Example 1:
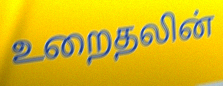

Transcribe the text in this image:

உறைதலின்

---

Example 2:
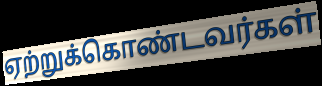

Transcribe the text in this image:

ஏற்றுக்கொண்டவர்கள்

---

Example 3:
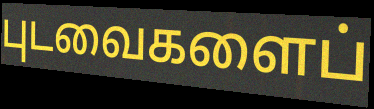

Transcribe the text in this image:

புடவைகளைப்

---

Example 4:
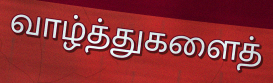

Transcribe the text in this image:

வாழ்த்துகளைத்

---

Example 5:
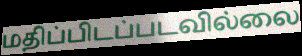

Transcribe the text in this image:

மதிப்பிடப்படவில்லை